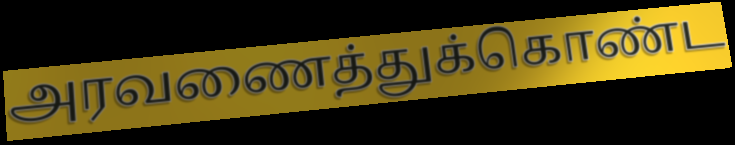
அரவணைத்துக்கொண்ட